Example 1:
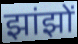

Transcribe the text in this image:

झांझों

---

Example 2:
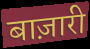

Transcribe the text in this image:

बाज़ारी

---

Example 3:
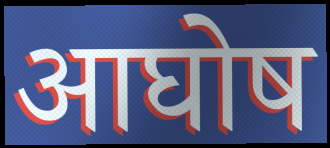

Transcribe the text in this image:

आघोष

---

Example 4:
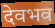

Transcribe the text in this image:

देवभव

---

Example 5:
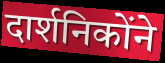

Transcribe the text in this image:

दार्शनिकोंने